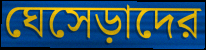
ঘেসেড়াদের